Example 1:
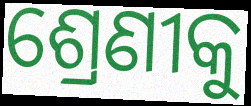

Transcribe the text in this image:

ଶ୍ରେଣୀକୁ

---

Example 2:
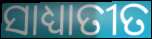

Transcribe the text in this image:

ସାଧ୍ୟାତୀତ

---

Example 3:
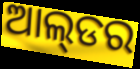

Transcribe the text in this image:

ଆଲ୍‌ଡର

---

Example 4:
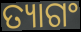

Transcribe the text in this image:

ତ୍ୟାଗଂ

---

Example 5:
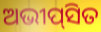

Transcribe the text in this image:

ଅଭୀପ୍‌ସିତ